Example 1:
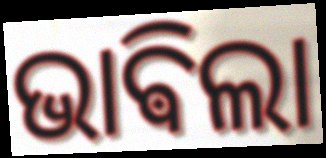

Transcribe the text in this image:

ଭାଵିଲା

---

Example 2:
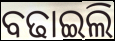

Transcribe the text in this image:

ବଢାଇଲି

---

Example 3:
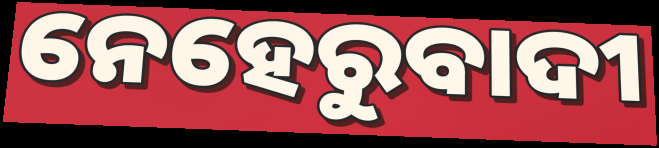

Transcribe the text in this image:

ନେହେରୁବାଦୀ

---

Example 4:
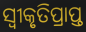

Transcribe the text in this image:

ସ୍ୱୀକୃତିପ୍ରାପ୍ତ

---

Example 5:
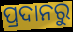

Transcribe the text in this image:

ପ୍ରଦାନରୁ